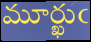
మూర్ఖుఁ